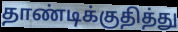
தாண்டிக்குதித்து